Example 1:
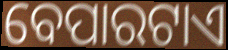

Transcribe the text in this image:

ବେପାରଟାଏ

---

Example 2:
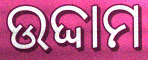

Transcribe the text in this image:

ଉଦ୍ଦାମ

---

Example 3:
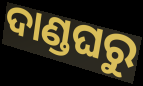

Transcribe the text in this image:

ଦାଣ୍ଡଘରୁ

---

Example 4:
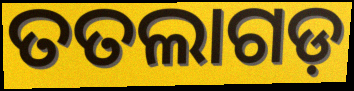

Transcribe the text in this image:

ତତଲାଗଡ଼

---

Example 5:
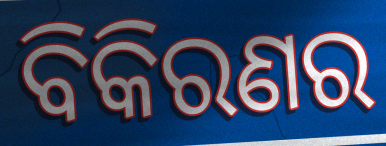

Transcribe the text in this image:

ବିକିରଣର